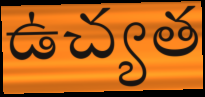
ఉచ్యత